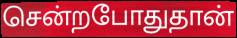
சென்றபோதுதான்